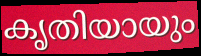
കൃതിയായും